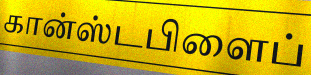
கான்ஸ்டபிளைப்